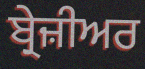
ਬ੍ਰੇਜ਼ੀਅਰ